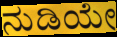
ನುಡಿಯೇ